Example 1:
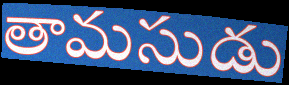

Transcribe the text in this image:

తామసుడు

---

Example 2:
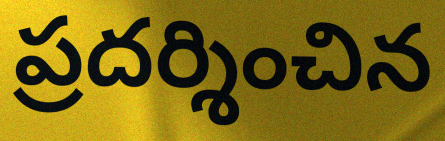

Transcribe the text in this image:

ప్రదర్శించిన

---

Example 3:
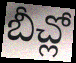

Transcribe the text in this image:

బీచ్లో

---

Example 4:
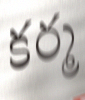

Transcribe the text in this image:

కర్మ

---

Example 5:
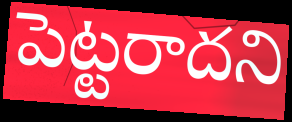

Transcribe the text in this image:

పెట్టరాదని